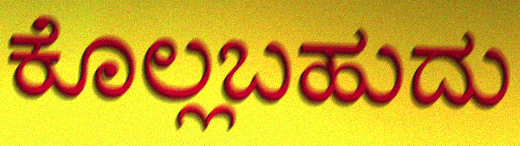
ಕೊಲ್ಲಬಹುದು